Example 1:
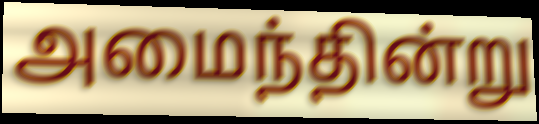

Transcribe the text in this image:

அமைந்தின்று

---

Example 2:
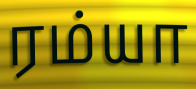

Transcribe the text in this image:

ரம்யா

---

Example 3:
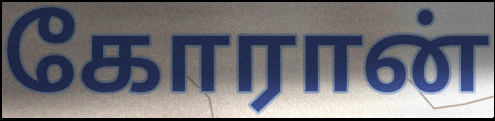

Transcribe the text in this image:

கோரான்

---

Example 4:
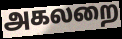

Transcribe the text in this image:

அகலறை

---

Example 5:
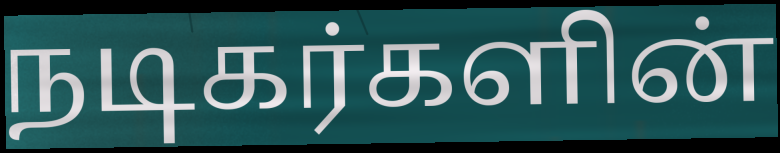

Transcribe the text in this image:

நடிகர்களின்